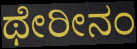
ಥೇರೀನಂ